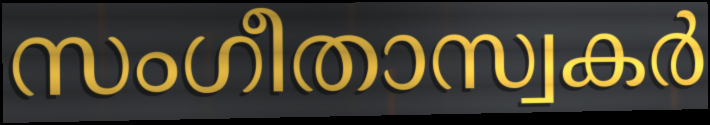
സംഗീതാസ്വകർ